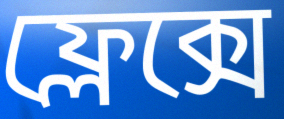
ফ্লেক্সে